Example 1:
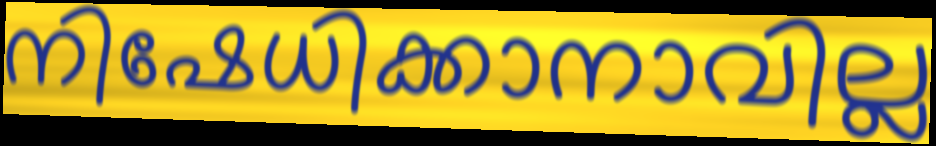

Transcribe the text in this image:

നിഷേധിക്കാനാവില്ല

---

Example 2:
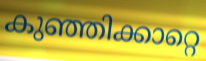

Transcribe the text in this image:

കുഞ്ഞിക്കാറ്റെ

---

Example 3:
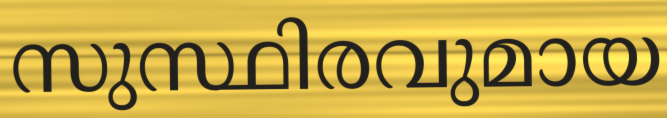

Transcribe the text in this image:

സുസ്ഥിരവുമായ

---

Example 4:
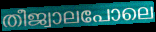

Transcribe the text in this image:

തീജ്വാലപോലെ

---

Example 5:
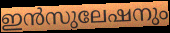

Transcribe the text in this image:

ഇൻസുലേഷനും